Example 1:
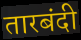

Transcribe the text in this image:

तारबंदी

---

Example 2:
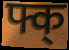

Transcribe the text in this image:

फ्क्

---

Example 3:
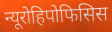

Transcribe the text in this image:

न्यूरोहिपोफिसिस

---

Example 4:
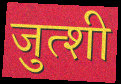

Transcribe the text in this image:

जुत्शी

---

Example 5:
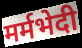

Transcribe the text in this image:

मर्मभेदी